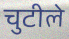
चुटीले